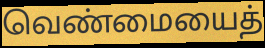
வெண்மையைத்